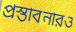
প্রস্তাবনারও